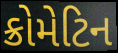
ક્રોમેટિન